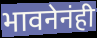
भावनेनंही